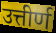
उत्तीर्ण